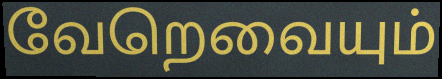
வேறெவையும்